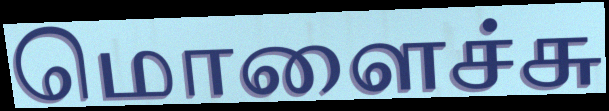
மொளைச்சு